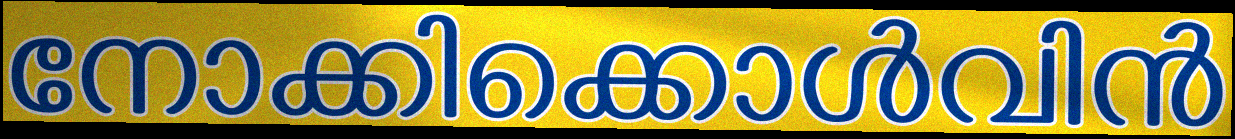
നോക്കിക്കൊൾവിൻ